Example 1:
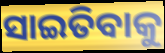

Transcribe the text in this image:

ସାଇତିବାକୁ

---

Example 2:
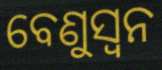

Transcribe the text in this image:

ବେଣୁସ୍ଵନ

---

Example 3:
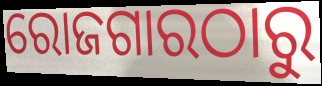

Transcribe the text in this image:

ରୋଜଗାରଠାରୁ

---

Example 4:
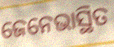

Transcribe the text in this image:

ଜେନେଭାସ୍ଥିତ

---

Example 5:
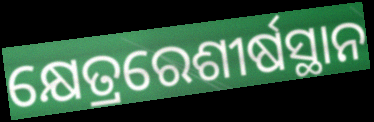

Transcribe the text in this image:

କ୍ଷେତ୍ରରେଶୀର୍ଷସ୍ଥାନ